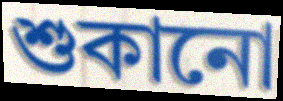
শুকানো